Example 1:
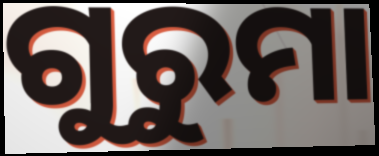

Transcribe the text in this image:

ଗୁରୁମା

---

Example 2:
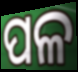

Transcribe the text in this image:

ପଳ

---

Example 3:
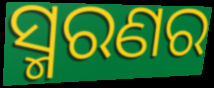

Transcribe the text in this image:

ସ୍ମରଣର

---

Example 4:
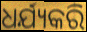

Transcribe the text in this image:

ଧର୍ଯ୍ୟକରି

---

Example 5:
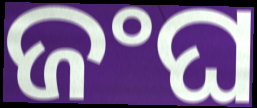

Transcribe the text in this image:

ଜଂଘ